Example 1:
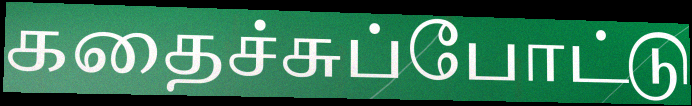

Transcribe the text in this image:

கதைச்சுப்போட்டு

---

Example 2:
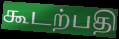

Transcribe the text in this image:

கூடற்பதி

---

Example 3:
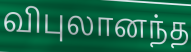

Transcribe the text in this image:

விபுலானந்த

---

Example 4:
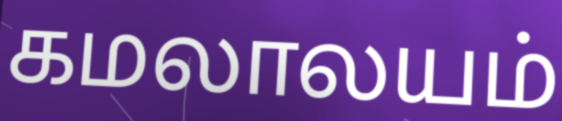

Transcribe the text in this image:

கமலாலயம்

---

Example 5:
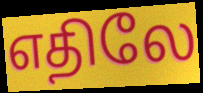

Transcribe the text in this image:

எதிலே